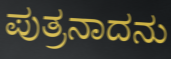
ಪುತ್ರನಾದನು